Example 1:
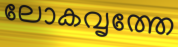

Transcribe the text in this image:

ലോകവൃത്തേ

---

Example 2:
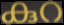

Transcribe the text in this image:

കുറ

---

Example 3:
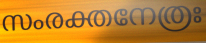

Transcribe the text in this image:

സംരക്തനേത്രഃ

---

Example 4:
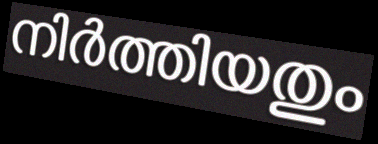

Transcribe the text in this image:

നിർത്തിയതും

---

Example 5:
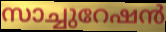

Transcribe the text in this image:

സാച്ചുറേഷൻ